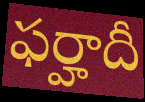
ఫర్హాదీ